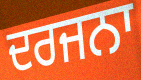
ਦਰਜਨਾ